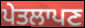
ਪੇਤਲਾਪਣ